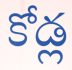
కోడ్ల